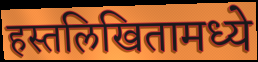
हस्तलिखितामध्ये